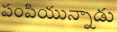
పంపియున్నాడు